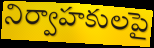
నిర్వాహకులపై